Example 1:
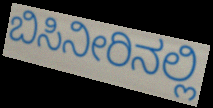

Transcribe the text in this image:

ಬಿಸಿನೀರಿನಲ್ಲಿ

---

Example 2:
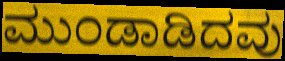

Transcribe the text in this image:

ಮುಂಡಾಡಿದವು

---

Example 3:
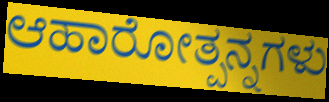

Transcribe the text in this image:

ಆಹಾರೋತ್ಪನ್ನಗಳು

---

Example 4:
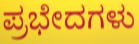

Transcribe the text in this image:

ಪ್ರಭೇದಗಳು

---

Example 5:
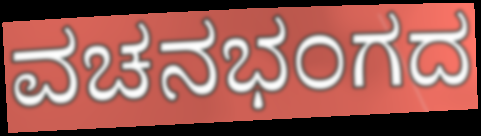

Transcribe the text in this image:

ವಚನಭಂಗದ